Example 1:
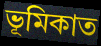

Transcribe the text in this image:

ভূমিকাত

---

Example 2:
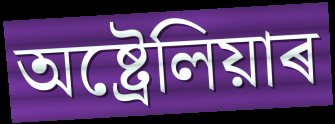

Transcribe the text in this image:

অষ্ট্ৰেলিয়াৰ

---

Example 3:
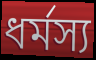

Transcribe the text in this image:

ধৰ্মস্য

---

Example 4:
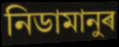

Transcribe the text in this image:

নিডামানুৰ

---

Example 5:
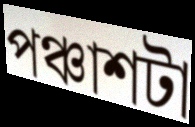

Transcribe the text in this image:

পঞ্চাশটা